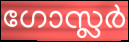
ഗോസ്ലർ